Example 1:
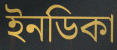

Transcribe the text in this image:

ইনডিকা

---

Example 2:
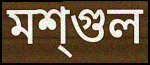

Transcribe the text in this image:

মশ্গুল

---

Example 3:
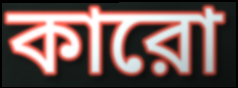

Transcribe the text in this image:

কারো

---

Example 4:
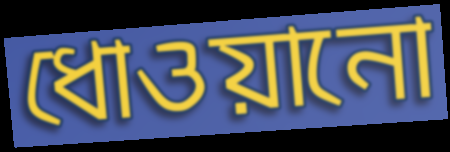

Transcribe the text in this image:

ধোওয়ানো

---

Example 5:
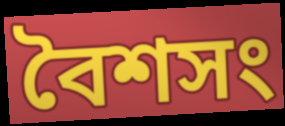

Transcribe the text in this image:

বৈশসং